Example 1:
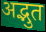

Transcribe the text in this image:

अद्भुत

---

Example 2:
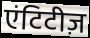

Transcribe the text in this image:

एंटिटीज़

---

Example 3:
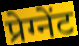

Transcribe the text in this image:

प्रेग्‍नेंट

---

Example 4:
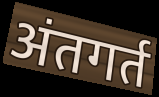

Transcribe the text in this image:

अंतगर्त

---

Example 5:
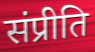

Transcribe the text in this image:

संप्रीति